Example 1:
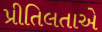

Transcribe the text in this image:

પ્રીતિલતાએ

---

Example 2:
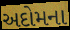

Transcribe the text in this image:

અદોમના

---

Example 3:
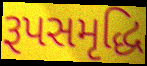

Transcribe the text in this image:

રૂપસમૃદ્ધિ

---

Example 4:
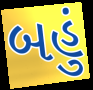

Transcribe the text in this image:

બહું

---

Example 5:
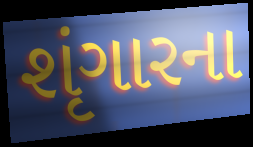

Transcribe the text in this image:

શૃંગારના